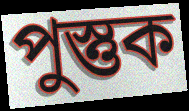
পুস্তুক